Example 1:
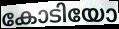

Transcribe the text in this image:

കോടിയോ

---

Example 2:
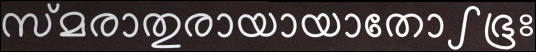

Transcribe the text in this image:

സ്മരാതുരായായാതോഽഭൂഃ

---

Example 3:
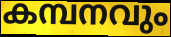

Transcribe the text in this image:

കമ്പനവും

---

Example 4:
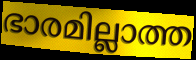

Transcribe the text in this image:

ഭാരമില്ലാത്ത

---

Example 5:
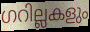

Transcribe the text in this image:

ഗറില്ലകളും